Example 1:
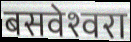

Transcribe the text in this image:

बसवेश्वरा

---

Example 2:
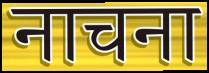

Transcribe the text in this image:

नाचना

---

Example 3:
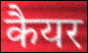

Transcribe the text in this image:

कैयर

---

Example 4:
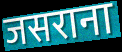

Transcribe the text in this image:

जसराना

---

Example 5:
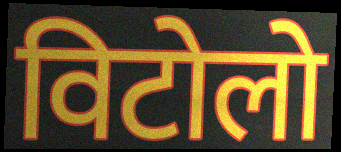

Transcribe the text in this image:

विटोलो